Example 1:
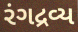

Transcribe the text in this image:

રંગદ્રવ્ય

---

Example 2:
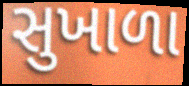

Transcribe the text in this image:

સુખાળા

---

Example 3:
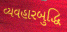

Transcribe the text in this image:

વ્યવહારબુદ્ધિ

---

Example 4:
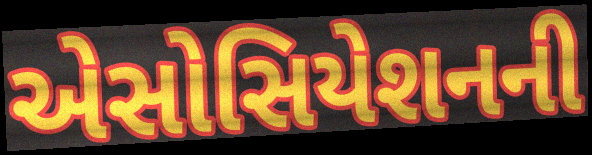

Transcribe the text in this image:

એસોસિયેશનની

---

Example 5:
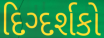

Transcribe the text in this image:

દિગ્દર્શકો